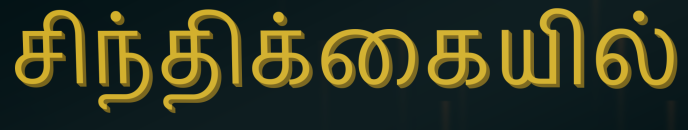
சிந்திக்கையில்